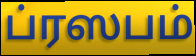
ப்ரஸபம்